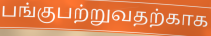
பங்குபற்றுவதற்காக